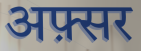
अफ़्सर